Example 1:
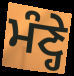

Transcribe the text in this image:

ਮੰਣ੍ਹੇ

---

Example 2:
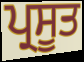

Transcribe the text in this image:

ਪ੍ਰਸੂਤ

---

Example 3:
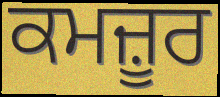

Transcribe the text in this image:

ਕਮਜ਼ੂਰ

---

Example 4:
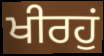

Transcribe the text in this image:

ਖੀਰਹੁਂ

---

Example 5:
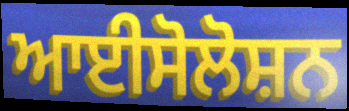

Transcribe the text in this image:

ਆਈਸੋਲੋਸ਼ਨ